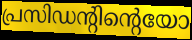
പ്രസിഡന്റിന്റെയോ